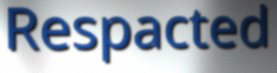
Respacted